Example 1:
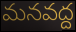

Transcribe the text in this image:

మనవద్ద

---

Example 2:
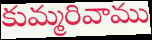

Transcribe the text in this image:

కుమ్మరివాము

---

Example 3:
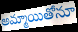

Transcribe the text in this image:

అమ్మాయితోనూ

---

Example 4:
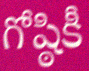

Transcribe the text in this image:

గోష్ఠికీ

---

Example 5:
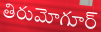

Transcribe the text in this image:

తిరుమోగూర్